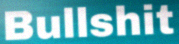
Bullshit